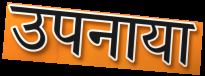
उपनाया